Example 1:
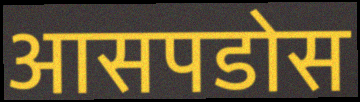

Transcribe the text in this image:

आसपडोस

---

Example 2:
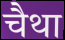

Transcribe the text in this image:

चैथा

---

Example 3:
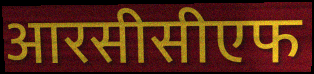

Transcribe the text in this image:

आरसीसीएफ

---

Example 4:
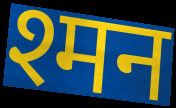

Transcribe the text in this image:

श्मन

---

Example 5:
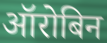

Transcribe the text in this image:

ऑरोबिन